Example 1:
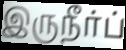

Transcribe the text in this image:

இருநீர்ப்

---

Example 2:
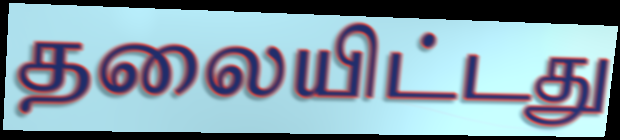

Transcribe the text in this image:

தலையிட்டது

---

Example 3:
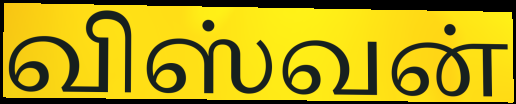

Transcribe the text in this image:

விஸ்வன்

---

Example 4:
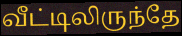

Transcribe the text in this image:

வீட்டிலிருந்தே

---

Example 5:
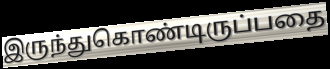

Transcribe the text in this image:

இருந்துகொண்டிருப்பதை